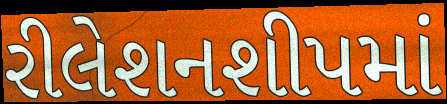
રીલેશનશીપમાં